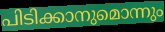
പിടിക്കാനുമൊന്നും